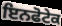
ਇਨਫੋਟੇਕ